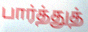
பார்த்துத்